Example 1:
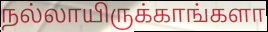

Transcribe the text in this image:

நல்லாயிருக்காங்களா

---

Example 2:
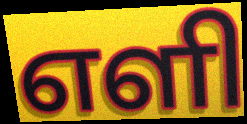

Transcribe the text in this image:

எளி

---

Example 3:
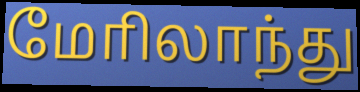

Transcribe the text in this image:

மேரிலாந்து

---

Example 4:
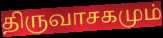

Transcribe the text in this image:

திருவாசகமும்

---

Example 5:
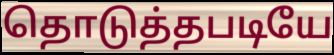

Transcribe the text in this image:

தொடுத்தபடியே